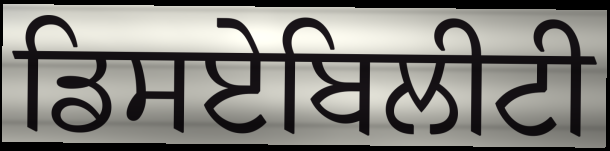
ਡਿਸਏਬਿਲੀਟੀ